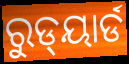
ରୁଡ୍‌ୟାର୍ଡ